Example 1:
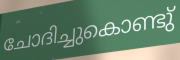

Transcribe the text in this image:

ചോദിച്ചുകൊണ്ടു്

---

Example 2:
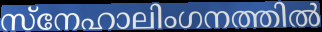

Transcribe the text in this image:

സ്നേഹാലിംഗനത്തിൽ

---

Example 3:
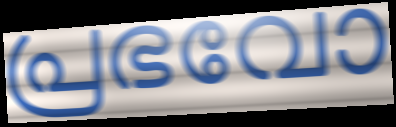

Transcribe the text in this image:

പ്രഭവോ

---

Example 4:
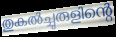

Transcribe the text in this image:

തുകൽച്ചുരുളിന്റെ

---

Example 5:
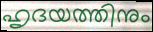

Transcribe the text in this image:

ഹൃദയത്തിനും